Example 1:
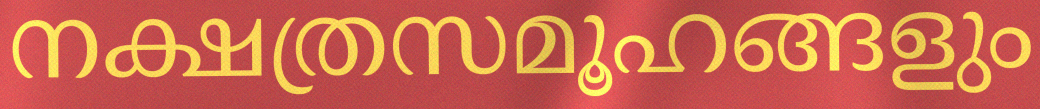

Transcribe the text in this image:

നക്ഷത്രസമൂഹങ്ങളും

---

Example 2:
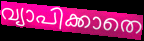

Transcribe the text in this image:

വ്യാപിക്കാതെ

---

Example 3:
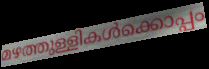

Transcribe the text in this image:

മഴത്തുള്ളികൾക്കൊപ്പം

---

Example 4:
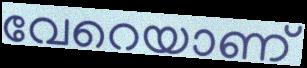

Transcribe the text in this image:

വേറെയാണ്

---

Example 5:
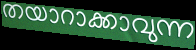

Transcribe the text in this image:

തയാറാക്കാവുന്ന